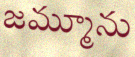
జమ్మూను